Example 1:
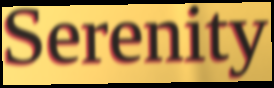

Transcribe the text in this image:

Serenity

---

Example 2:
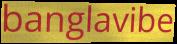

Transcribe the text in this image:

banglavibe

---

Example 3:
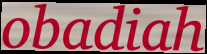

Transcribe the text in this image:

obadiah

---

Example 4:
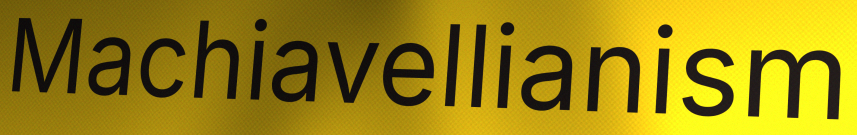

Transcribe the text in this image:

Machiavellianism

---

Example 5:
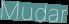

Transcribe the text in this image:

Mudar